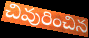
చివురించిన